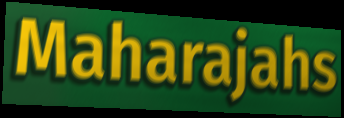
Maharajahs